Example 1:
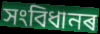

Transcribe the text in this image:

সংবিধানৰ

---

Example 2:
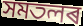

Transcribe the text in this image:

সমতলৰ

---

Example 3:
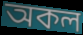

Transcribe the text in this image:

অকল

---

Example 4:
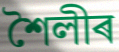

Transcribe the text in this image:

শৈলীৰ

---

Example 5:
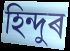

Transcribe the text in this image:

হিন্দুৰ